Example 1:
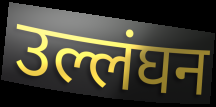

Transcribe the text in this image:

उल्लंघन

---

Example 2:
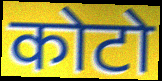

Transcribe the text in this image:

कोटो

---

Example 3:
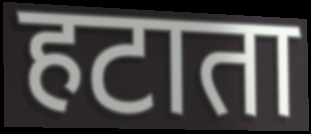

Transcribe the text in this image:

हटाता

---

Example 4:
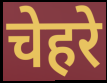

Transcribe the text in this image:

चेहरे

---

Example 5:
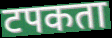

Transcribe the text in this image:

टपकता